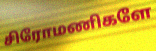
சிரோமணிகளே